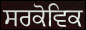
ਸਰਕੋਵਿਕ